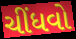
ચીંધવો